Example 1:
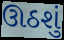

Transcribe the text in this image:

ઊઠશું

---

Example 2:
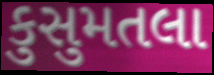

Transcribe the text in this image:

કુસુમતલા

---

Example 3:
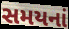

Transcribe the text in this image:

સમયનાં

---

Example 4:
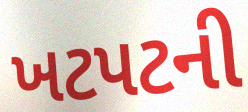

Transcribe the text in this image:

ખટપટની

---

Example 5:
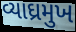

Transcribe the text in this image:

વ્યાઘ્રમુખ